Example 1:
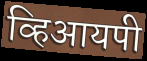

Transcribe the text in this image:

व्हिआयपी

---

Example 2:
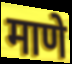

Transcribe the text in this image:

माणे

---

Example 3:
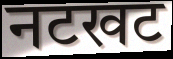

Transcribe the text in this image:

नटखट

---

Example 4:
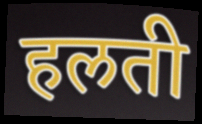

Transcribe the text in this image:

हलती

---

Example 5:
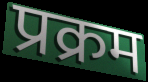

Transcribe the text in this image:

प्रक्रम